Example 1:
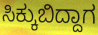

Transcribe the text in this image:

ಸಿಕ್ಕುಬಿದ್ದಾಗ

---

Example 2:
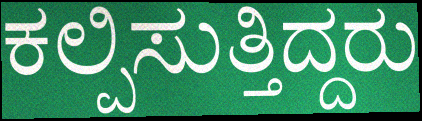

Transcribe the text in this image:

ಕಲ್ಪಿಸುತ್ತಿದ್ದರು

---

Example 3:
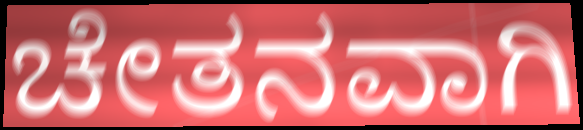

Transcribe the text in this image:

ಚೇತನವಾಗಿ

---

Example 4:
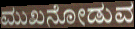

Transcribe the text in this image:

ಮುಖನೋಡುವ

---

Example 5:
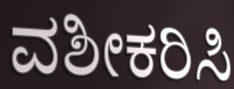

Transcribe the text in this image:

ವಶೀಕರಿಸಿ